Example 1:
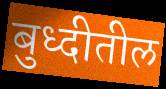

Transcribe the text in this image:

बुध्दीतील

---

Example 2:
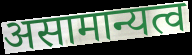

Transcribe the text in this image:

असामान्यत्व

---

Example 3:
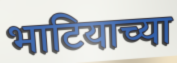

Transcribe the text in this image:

भाटियाच्या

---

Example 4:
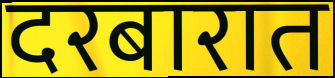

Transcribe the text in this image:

दरबारात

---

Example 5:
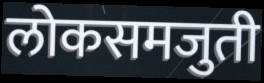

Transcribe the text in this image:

लोकसमजुती